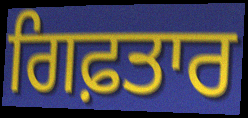
ਗਿਫ਼ਤਾਰ